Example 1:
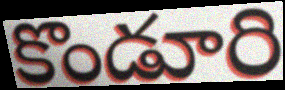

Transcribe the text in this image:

కొండూరి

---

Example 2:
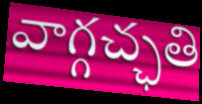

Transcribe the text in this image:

వాగ్గచ్ఛతి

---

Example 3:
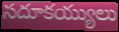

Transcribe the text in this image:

సదూకయ్యులు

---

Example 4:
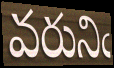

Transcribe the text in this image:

వరునిఁ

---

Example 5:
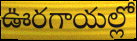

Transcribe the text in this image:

ఊరగాయల్లో